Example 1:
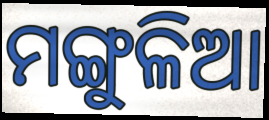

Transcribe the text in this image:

ମଙ୍ଗୁଳିଆ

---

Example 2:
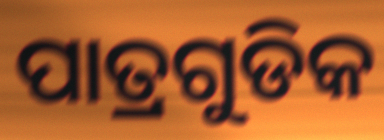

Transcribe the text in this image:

ପାତ୍ରଗୁଡିକ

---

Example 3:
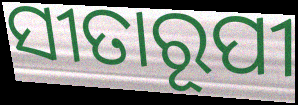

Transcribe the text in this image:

ସୀତାରୂପୀ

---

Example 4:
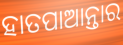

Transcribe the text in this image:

ହାତପାଆନ୍ତାର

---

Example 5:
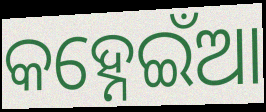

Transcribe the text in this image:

କହ୍ନେଇଁଆ